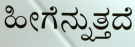
ಹೀಗೆನ್ನುತ್ತದೆ